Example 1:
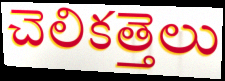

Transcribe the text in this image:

చెలికత్తెలు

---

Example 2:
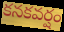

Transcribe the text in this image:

కనకవర్షం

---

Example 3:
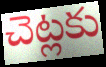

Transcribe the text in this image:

చెట్లకు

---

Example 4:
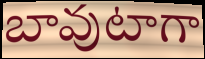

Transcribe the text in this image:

బావుటాగా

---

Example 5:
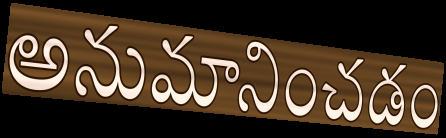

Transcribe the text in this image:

అనుమానించడం